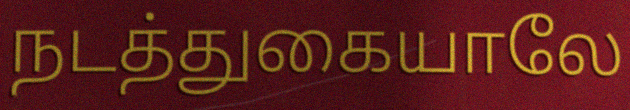
நடத்துகையாலே